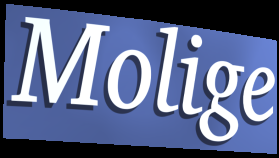
Molige